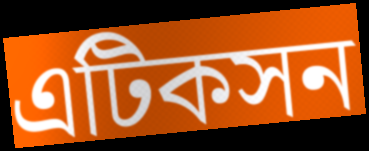
এটিকসন